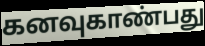
கனவுகாண்பது